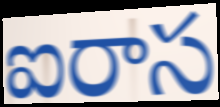
ఐరాస